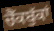
ਚੈੱਕਬੁੱਕਾਂ